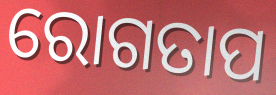
ରୋଗତାପ